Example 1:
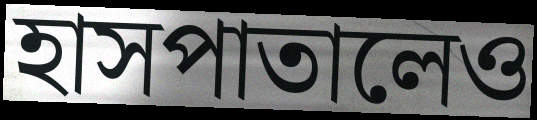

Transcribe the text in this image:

হাসপাতালেও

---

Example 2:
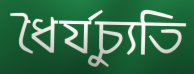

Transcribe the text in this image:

ধৈর্যচ্যুতি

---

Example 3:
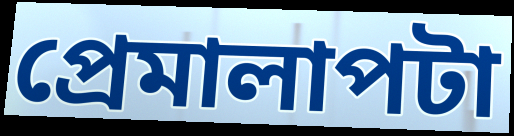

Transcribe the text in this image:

প্রেমালাপটা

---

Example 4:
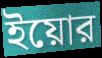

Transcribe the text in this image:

ইয়োর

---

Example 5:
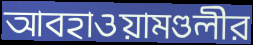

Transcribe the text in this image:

আবহাওয়ামণ্ডলীর